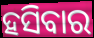
ହସିବାର